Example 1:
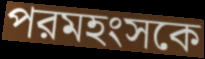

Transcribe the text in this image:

পরমহংসকে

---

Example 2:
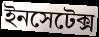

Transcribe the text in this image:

ইনসেটেক্স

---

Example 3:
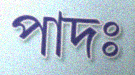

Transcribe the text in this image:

পাদঃ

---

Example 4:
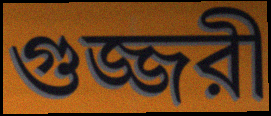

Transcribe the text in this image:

গুজ্জরী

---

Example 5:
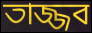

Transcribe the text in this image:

তাজ্জব